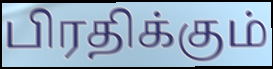
பிரதிக்கும்